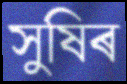
সুষিৰ